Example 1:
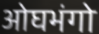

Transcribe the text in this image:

ओघभंगो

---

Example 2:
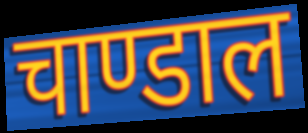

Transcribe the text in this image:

चाण्डाल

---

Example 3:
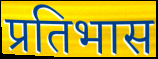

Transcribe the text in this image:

प्रतिभास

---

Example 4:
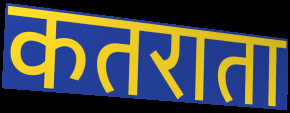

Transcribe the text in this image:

कतराता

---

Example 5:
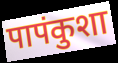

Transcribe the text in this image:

पापंकुशा